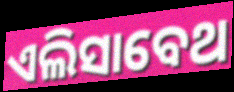
ଏଲିସାବେଥ